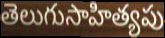
తెలుగుసాహిత్యపు